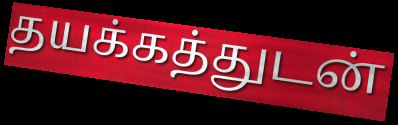
தயக்கத்துடன்